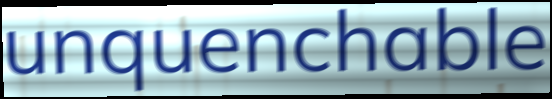
unquenchable